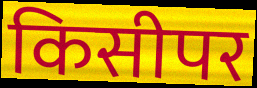
किसीपर